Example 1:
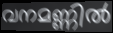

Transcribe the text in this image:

വനമണ്ണിൽ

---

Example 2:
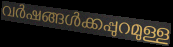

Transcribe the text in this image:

വർഷങ്ങൾക്കപ്പുറമുള്ള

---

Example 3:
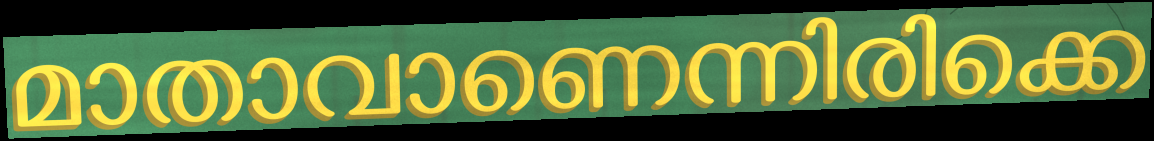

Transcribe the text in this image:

മാതാവാണെന്നിരിക്കെ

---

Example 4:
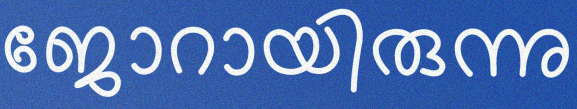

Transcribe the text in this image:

ജോറായിരുന്നു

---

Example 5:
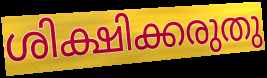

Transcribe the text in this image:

ശിക്ഷിക്കരുതു